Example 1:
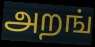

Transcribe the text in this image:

அறங்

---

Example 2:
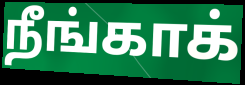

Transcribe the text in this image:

நீங்காக்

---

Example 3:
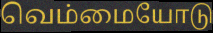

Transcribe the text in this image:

வெம்மையோடு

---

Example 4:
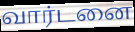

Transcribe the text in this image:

வார்டனை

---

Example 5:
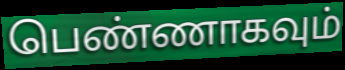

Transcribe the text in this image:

பெண்ணாகவும்